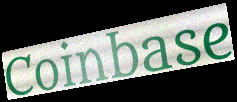
Coinbase